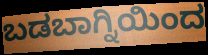
ಬಡಬಾಗ್ನಿಯಿಂದ